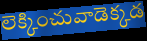
లెక్కించువాడెక్కడ